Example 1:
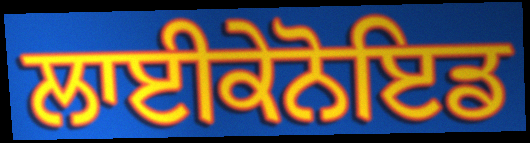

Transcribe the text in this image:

ਲਾਈਕੇਨੋਇਡ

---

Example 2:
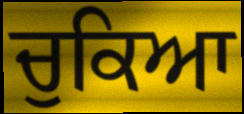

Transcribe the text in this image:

ਚੁਕਿਆ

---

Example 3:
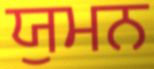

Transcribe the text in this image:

ਯੁਮਨ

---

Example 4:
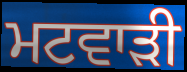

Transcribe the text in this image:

ਮਟਵਾੜੀ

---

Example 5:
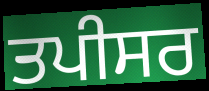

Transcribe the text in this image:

ਤਪੀਸਰ